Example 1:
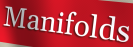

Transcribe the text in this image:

Manifolds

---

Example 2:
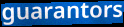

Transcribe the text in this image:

guarantors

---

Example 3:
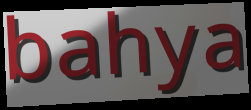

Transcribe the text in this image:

bahya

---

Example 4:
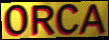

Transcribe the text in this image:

ORCA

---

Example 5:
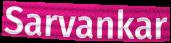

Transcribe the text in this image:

Sarvankar